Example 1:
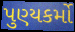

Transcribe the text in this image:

પુણ્યકર્મો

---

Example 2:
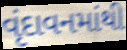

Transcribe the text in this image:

વૃંદાવનમાંથી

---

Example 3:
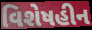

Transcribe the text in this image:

વિશેષહીન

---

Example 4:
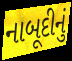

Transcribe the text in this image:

નાબૂદીનું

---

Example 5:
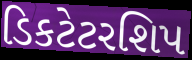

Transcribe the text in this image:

ડિકટેટરશિપ